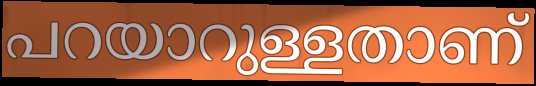
പറയാറുള്ളതാണ്